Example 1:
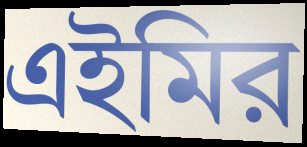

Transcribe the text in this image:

এইমির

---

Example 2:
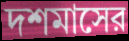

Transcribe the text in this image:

দশমাসের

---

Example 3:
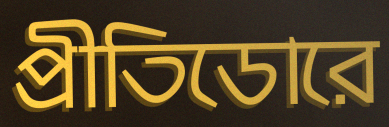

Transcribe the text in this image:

প্রীতিডোরে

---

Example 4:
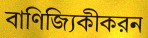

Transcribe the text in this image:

বাণিজ্যিকীকরন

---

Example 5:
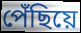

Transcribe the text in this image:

পেঁছিয়ে